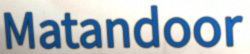
Matandoor